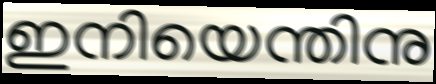
ഇനിയെന്തിനു